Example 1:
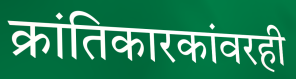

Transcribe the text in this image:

क्रांतिकारकांवरही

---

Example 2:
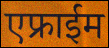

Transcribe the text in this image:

एफ्राईम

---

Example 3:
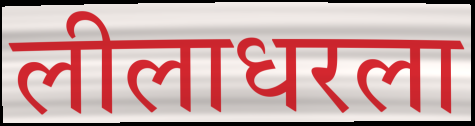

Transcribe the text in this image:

लीलाधरला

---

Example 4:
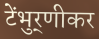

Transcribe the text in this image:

टेंभुर्णीकर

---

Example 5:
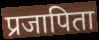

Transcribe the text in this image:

प्रजापिता